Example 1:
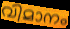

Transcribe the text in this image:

വിമാനം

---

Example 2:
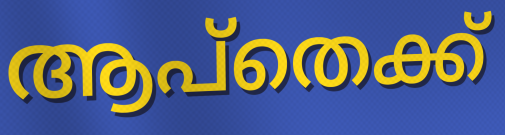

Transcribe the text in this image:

ആപ്തെക്ക്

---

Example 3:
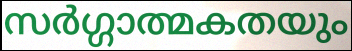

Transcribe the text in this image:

സർഗ്ഗാത്മകതയും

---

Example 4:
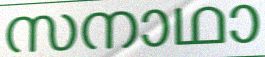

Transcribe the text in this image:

സനാഥാ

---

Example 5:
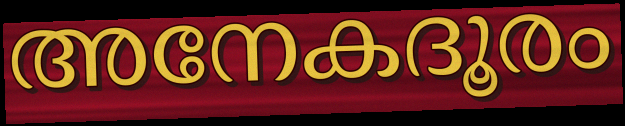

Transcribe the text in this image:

അനേകദൂരം